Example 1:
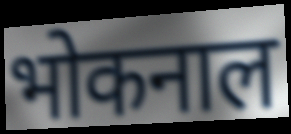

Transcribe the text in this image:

भोकनाल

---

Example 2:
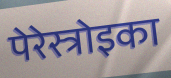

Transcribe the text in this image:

पेरेस्त्रोइका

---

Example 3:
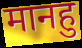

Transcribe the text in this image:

मानहु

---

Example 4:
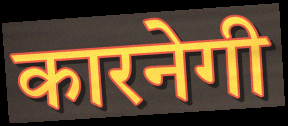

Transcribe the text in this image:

कारनेगी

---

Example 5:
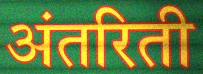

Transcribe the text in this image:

अंतरिती